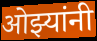
ओझ्यांनी